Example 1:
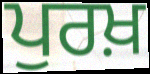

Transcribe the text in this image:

ਪੁਰਖ਼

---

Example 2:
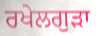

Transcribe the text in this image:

ਰਖੇਲਗੁੜਾ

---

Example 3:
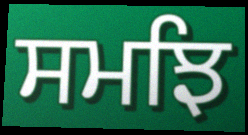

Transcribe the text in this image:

ਸਮਝਿ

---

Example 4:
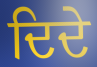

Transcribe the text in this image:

ਦਿਦੇ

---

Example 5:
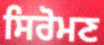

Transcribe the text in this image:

ਸਿਰੋਮਣ